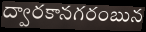
ద్వారకానగరంబున